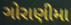
ગોરાણીમા